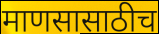
माणसासाठीच